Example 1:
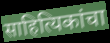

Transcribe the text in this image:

साहित्यिकांचा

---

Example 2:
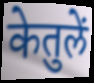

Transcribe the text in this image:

केतुलें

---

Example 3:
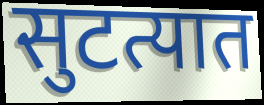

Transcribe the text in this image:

सुटत्यात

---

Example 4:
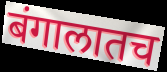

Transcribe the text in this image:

बंगालातच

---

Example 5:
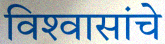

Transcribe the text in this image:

विश्‍वासांचे